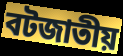
বটজাতীয়